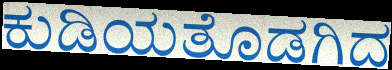
ಕುಡಿಯತೊಡಗಿದ